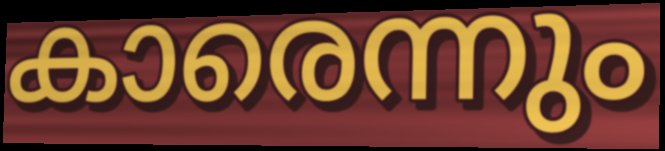
കാരെന്നും